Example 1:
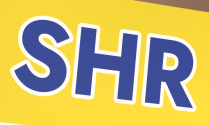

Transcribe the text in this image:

SHR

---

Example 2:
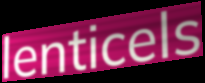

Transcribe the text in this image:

lenticels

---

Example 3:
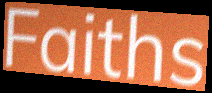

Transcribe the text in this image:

Faiths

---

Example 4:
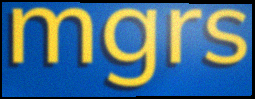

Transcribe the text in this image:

mgrs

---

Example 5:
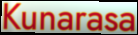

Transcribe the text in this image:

Kunarasa